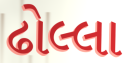
ઢોલ્લા